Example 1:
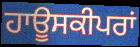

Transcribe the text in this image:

ਹਾਊਸਕੀਪਰਾਂ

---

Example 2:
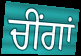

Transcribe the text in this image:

ਚੀਂਗਾਂ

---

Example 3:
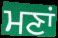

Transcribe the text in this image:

ਮਣਾਂ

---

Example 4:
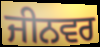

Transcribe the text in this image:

ਜੀਨਵਰ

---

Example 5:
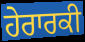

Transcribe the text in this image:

ਹੇਰਾਰਕੀ